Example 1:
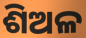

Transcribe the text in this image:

ଶିଅଳ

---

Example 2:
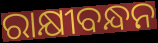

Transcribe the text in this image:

ରାକ୍ଷୀବନ୍ଧନ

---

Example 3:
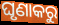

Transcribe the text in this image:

ଘୃଣାକରୁ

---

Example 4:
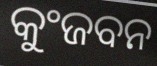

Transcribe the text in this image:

କୁଂଜବନ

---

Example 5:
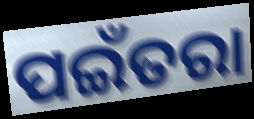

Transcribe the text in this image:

ପଇଁତରା